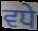
ਵਧੇ